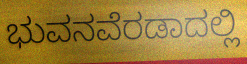
ಭುವನವೆರಡಾದಲ್ಲಿ